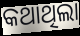
କଥାଥିଲା